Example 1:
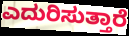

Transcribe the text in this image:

ಎದುರಿಸುತ್ತಾರೆ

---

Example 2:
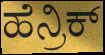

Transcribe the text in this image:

ಹೆನ್ರಿಕ್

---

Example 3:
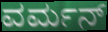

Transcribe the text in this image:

ವರ್ಮನ್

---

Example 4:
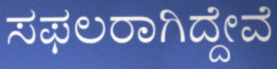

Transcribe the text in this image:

ಸಫಲರಾಗಿದ್ದೇವೆ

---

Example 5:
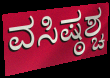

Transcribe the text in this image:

ವಸಿಷ್ಠಶ್ಚ